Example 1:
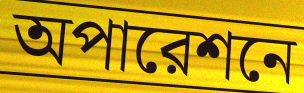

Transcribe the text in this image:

অপারেশনে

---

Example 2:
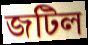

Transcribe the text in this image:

জটিল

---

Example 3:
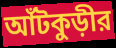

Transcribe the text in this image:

আঁটকুড়ীর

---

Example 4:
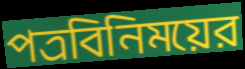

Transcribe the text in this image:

পত্রবিনিময়ের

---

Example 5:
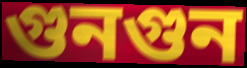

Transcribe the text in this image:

গুনগুন